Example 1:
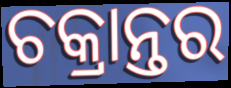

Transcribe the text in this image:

ଚକ୍ରାନ୍ତର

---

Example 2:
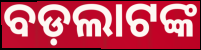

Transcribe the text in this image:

ବଡ଼ଲାଟଙ୍କ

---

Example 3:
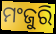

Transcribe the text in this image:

ମଂଜୁରି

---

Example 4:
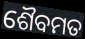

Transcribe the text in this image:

ଶୈବମତ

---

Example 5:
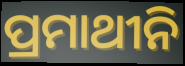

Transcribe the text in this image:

ପ୍ରମାଥୀନି